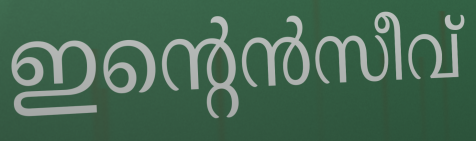
ഇന്റെൻസീവ്